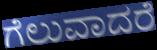
ಗೆಲುವಾದರೆ